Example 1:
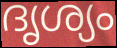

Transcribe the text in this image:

ദൃശ്യം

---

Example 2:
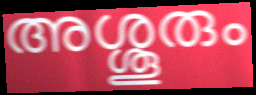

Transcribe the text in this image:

അശ്ശൂരും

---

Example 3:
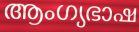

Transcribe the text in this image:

ആംഗ്യഭാഷ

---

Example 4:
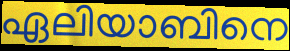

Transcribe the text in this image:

ഏലിയാബിനെ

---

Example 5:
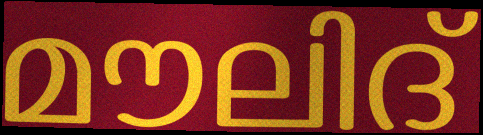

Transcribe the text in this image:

മൗലിദ്